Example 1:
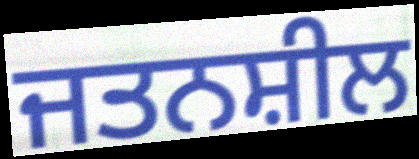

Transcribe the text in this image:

ਜਤਨਸ਼ੀਲ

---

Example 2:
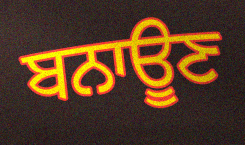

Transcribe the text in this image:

ਬਨਾਊਣ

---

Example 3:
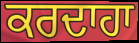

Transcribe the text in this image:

ਕਰਦਾਹਾ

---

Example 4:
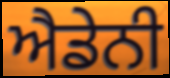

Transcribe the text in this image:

ਐਡੇਨੀ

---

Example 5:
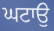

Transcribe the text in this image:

ਘਟਾਉ